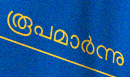
രൂപമാർന്നു